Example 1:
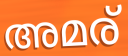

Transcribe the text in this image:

അമര്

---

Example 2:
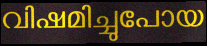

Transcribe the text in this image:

വിഷമിച്ചുപോയ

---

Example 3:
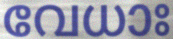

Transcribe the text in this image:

വേധാഃ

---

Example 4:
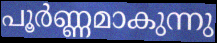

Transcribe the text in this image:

പൂർണ്ണമാകുന്നു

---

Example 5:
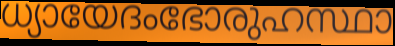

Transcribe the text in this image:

ധ്യായേദംഭോരുഹസ്ഥാ